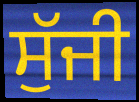
ਸੁੱਜੀ